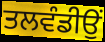
ਤਲਵੰਡੀਉਂ